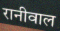
रानीवाल